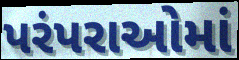
પરંપરાઓમાં